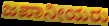
ಜಪಾನೀಯರು